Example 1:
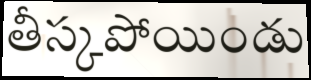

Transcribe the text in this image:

తీస్కపోయిండు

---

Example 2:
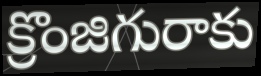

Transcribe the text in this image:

క్రొంజిగురాకు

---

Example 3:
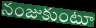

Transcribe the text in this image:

నంజుకుంటూ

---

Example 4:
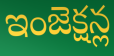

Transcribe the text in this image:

ఇంజెక్షన్ల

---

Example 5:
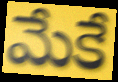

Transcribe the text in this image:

మేకే